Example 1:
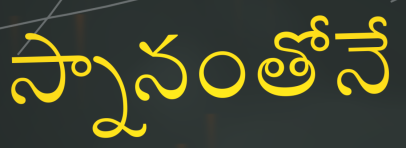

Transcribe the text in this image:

స్నానంతోనే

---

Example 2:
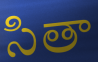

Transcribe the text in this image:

సితా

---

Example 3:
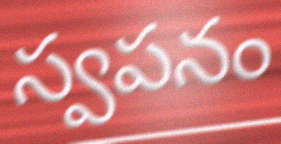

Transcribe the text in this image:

స్వపనం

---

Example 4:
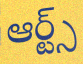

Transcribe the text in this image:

ఆర్ట్స్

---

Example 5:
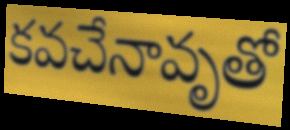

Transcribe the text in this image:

కవచేనావృతో